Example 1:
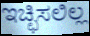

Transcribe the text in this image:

ಇಚ್ಛಿಸಲಿಲ್ಲ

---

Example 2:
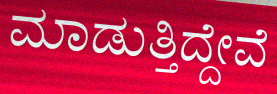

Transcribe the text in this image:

ಮಾಡುತ್ತಿದ್ದೇವೆ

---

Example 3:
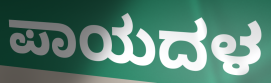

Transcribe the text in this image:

ಪಾಯದಳ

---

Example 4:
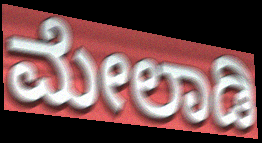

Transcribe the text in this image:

ಮೇಲಾಡಿ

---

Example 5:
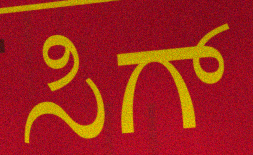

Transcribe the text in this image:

ಸಿಗ್